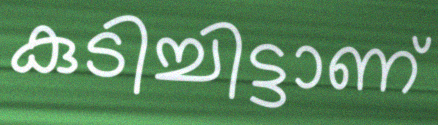
കുടിച്ചിട്ടാണ്